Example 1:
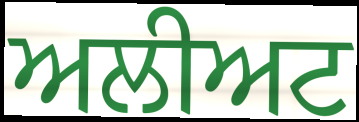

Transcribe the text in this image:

ਅਲੀਅਟ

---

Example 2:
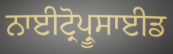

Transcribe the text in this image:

ਨਾਈਟ੍ਰੋਪ੍ਰੂਸਾਈਡ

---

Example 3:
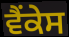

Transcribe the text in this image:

ਵੈਂਕੇਸ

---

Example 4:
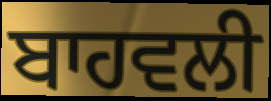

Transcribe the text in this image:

ਬਾਹਵਲੀ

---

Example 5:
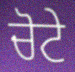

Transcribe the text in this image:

ਚੋਟੇ